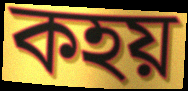
কহয়